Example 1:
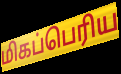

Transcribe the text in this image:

மிகப்பெரிய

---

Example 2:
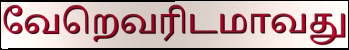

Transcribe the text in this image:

வேறெவரிடமாவது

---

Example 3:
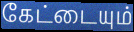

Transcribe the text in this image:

கேட்டையும்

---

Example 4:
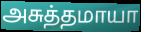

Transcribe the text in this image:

அசுத்தமாயா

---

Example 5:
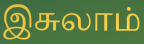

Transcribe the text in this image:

இசுலாம்